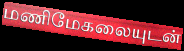
மணிமேகலையுடன்